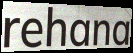
rehana